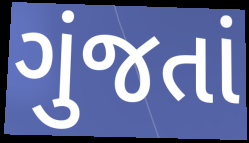
ગુંજતાં